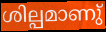
ശില്പമാണു്